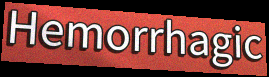
Hemorrhagic